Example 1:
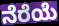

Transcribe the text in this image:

ನೆರೆಯೆ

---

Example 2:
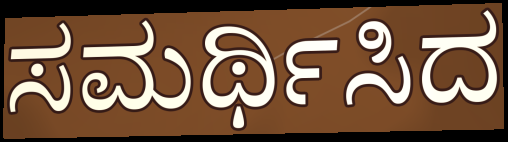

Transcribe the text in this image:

ಸಮರ್ಥಿಸಿದ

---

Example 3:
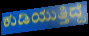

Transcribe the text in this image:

ಕುಡಿಯುತ್ತಿದ್ದೆ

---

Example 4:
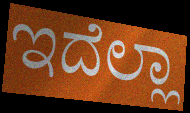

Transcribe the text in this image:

ಇದೆಲ್ಲಾ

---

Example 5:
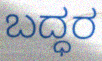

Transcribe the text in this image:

ಬದ್ಧರ